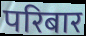
परिबार